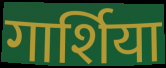
गार्शिया